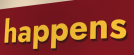
happens